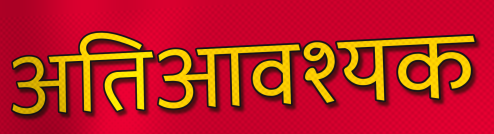
अतिआवश्यक